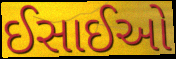
ઈસાઈઓ